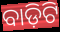
ବାଡ଼ିଟି